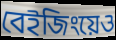
বেইজিংয়েও